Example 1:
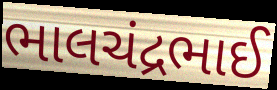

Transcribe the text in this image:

ભાલચંદ્રભાઈ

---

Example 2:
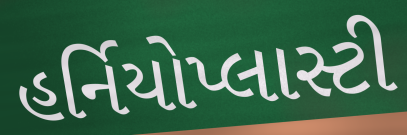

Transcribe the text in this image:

હર્નિયોપ્લાસ્ટી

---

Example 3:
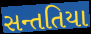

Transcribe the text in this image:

સન્તતિયા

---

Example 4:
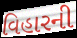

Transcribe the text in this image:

વિહારની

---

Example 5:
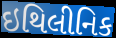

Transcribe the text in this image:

ઇથિલીનિક